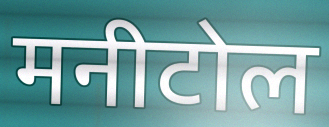
मनीटोल